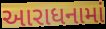
આરાધનામાં